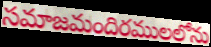
సమాజమందిరములలోను